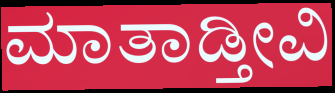
ಮಾತಾಡ್ತೀವಿ